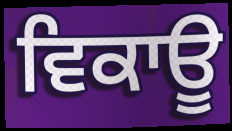
ਵਿਕਾਊ